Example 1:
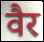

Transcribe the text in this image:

वैर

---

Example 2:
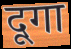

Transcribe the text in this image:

दूगा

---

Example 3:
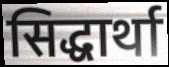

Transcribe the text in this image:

सिद्धार्था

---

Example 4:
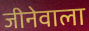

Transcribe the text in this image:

जीनेवाला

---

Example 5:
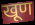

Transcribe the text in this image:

खूण